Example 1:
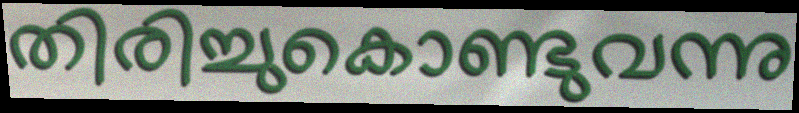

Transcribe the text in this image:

തിരിച്ചുകൊണ്ടുവന്നു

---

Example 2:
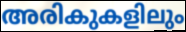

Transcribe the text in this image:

അരികുകളിലും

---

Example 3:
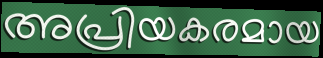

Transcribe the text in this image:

അപ്രിയകരമായ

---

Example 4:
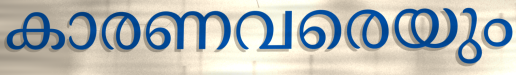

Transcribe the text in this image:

കാരണവരെയും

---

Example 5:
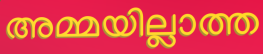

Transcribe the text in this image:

അമ്മയില്ലാത്ത